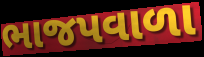
ભાજપવાળા